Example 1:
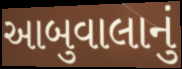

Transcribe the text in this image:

આબુવાલાનું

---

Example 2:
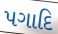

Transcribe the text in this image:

પગાદિ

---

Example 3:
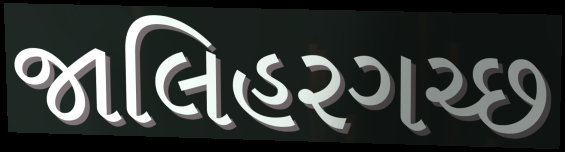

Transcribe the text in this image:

જાલિહરગચ્છ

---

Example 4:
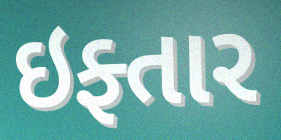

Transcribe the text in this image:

ઇફ્તાર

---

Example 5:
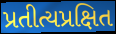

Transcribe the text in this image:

પ્રતીત્યપ્રક્ષિત